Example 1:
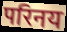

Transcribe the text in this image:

परिनय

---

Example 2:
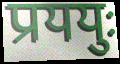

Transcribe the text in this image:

प्रययुः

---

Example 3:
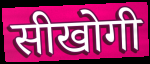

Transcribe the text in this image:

सीखोगी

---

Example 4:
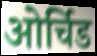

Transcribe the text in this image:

ओर्चिड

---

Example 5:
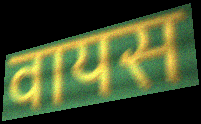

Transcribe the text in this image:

वायस